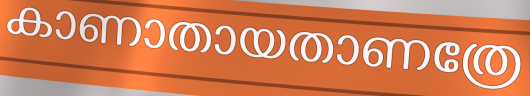
കാണാതായതാണത്രേ